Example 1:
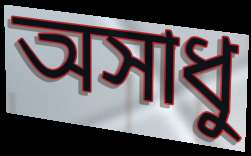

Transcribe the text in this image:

অসাধু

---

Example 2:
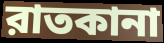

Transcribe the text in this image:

রাতকানা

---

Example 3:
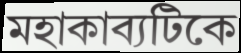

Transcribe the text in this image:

মহাকাব্যটিকে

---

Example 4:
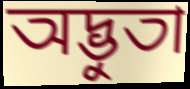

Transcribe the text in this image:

অদ্ভুতা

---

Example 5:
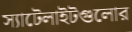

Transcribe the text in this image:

স্যাটেলাইটগুলোর